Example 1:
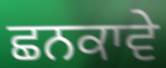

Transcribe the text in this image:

ਛਨਕਾਵੇ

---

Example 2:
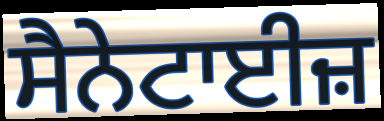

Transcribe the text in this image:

ਸੈਨੇਟਾਈਜ਼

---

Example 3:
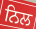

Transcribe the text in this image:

ਨਿਲ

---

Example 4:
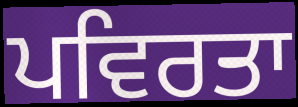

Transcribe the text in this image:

ਪਵਿਰਤਾ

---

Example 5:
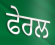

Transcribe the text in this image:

ਫੇਰਲ